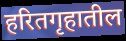
हरितगृहातील